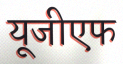
यूजीएफ